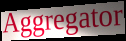
Aggregator